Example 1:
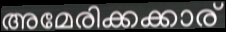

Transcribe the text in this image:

അമേരിക്കക്കാര്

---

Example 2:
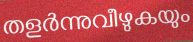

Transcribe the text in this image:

തളർന്നുവീഴുകയും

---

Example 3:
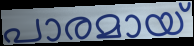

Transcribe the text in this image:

പാരമായ്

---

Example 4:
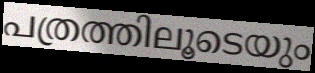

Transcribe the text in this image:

പത്രത്തിലൂടെയും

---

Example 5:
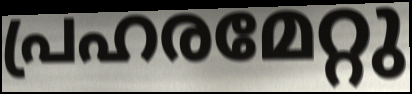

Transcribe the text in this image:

പ്രഹരമേറ്റു